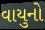
વાયુનો